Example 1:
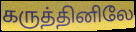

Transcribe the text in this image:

கருத்தினிலே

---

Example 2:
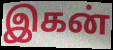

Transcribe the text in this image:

இகன்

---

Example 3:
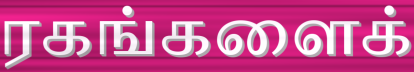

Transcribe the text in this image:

ரகங்களைக்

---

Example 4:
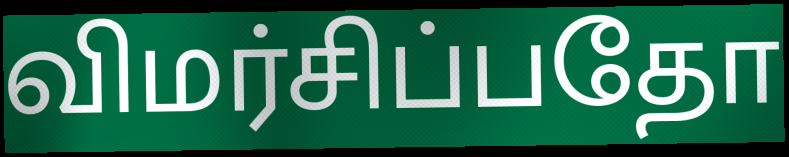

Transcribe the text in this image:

விமர்சிப்பதோ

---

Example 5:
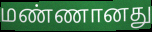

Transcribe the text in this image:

மண்ணானது